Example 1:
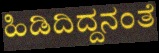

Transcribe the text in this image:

ಹಿಡಿದಿದ್ದನಂತೆ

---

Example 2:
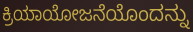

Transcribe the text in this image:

ಕ್ರಿಯಾಯೋಜನೆಯೊಂದನ್ನು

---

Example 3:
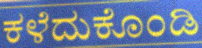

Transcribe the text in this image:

ಕಳೆದುಕೊಂಡಿ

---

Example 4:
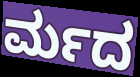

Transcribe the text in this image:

ರ್ಮದ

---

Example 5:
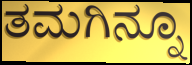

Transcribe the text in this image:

ತಮಗಿನ್ನೂ